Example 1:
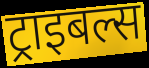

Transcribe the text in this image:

ट्राइबल्स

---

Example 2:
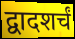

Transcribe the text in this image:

द्वादशर्चं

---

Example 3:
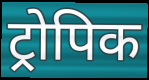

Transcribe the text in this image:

ट्रोपिक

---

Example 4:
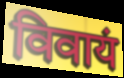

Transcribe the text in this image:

विवायं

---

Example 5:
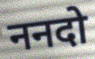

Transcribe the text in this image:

ननदो